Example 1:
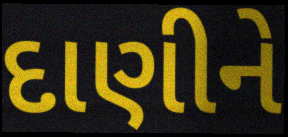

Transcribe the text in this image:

દાણીને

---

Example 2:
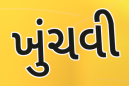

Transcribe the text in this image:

ખુંચવી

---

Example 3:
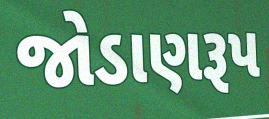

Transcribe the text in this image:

જોડાણરૂપ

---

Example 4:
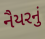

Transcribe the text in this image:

નૈયરનું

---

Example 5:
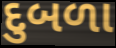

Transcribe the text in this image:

દુબળા